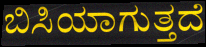
ಬಿಸಿಯಾಗುತ್ತದೆ